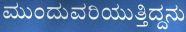
ಮುಂದುವರಿಯುತ್ತಿದ್ದನು